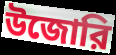
উজোরি